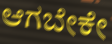
ಆಗಬೇಕೇ